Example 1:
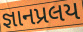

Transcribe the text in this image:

જ્ઞાનપ્રલય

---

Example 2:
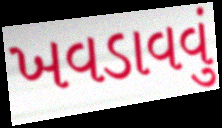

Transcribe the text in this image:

ખવડાવવું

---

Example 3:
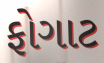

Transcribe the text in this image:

ફોગાટ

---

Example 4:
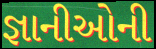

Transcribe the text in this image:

જ્ઞાનીઓની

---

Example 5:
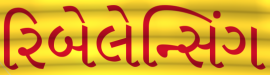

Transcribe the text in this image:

રિબેલેન્સિંગ